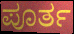
ಪೂರ್ತ